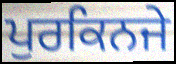
ਪੁਰਕਿਨਜੇ